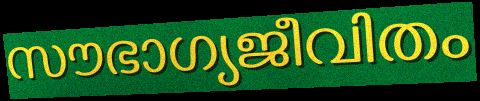
സൗഭാഗ്യജീവിതം